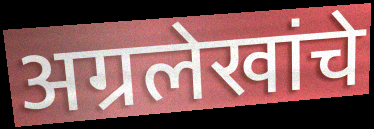
अग्रलेखांचे